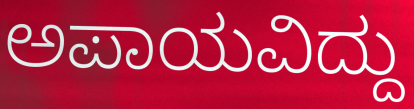
ಅಪಾಯವಿದ್ದು